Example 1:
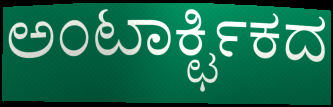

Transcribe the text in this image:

ಅಂಟಾರ್ಕ್ಟಿಕದ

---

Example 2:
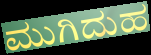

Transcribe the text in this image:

ಮುಗಿದುಹ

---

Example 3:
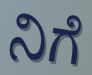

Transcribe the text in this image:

ನಿಗೆ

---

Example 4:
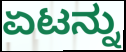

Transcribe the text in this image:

ಏಟನ್ನು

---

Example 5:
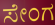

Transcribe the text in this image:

ಸೇಂಗ